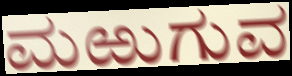
ಮಱುಗುವ